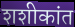
शशीकांत